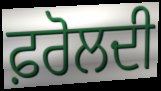
ਫ਼ਰੋਲਦੀ